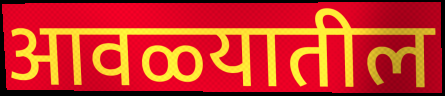
आवळ्यातील